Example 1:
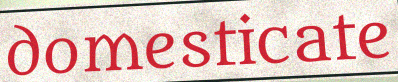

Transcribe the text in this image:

domesticate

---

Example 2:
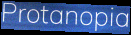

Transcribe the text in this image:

Protanopia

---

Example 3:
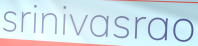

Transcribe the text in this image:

srinivasrao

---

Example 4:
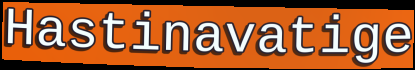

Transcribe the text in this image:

Hastinavatige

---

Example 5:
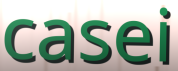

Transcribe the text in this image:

casei